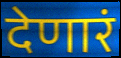
देणारं